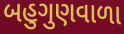
બહુગુણવાળા